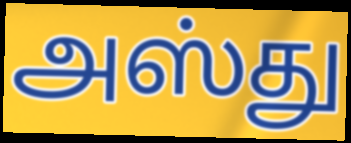
அஸ்து